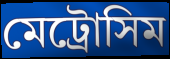
মেট্রোসিম